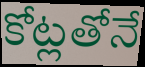
కోట్లతోనే